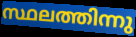
സ്ഥലത്തിന്നു